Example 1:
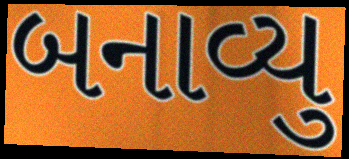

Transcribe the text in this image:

બનાવ્યુ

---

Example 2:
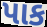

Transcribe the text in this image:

પાક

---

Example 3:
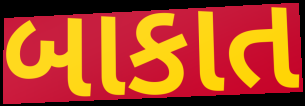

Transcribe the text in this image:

બાકાત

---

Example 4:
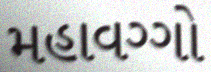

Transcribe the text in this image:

મહાવગ્ગો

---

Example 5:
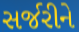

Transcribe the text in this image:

સર્જરીને